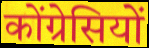
कोंग्रेसियों